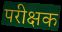
परीक्षक